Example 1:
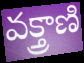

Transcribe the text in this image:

వక్త్రాణి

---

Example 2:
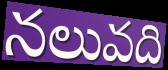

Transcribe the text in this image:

నలువది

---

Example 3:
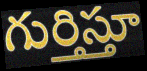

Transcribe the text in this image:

గుర్తిస్తూ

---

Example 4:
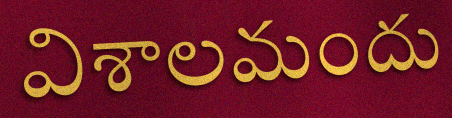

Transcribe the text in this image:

విశాలమందు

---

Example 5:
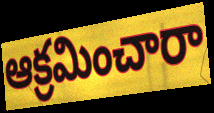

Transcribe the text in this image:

ఆక్రమించారా